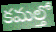
కమల్తో